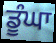
ਡੂੰਘਾ